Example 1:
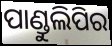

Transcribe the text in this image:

ପାଣ୍ଡୁଲିପିର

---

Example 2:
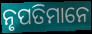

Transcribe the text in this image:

ନୃପତିମାନେ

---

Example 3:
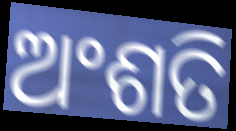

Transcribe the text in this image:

ଅଂଶତି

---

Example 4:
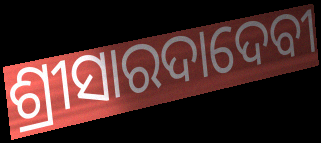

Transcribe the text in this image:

ଶ୍ରୀସାରଦାଦେବୀ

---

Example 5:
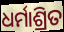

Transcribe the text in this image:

ଧର୍ମାଶ୍ରିତ